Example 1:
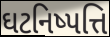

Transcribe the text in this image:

ઘટનિષ્પત્તિ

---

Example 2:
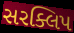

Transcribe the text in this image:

સરક્લિપ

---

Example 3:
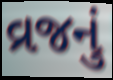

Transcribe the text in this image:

વ્રજનું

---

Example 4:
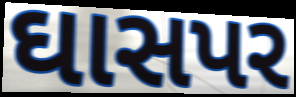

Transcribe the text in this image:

ઘાસપર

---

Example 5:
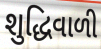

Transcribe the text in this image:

શુદ્ધિવાળી